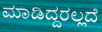
ಮಾಡಿದ್ದರಲ್ಲದೆ